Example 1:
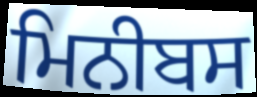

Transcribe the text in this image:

ਮਿਨੀਬਸ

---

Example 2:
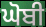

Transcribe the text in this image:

ਘੋਬੀ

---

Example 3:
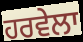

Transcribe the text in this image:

ਹਰਵੇਲਾ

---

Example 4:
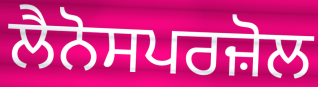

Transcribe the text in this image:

ਲੈਨੋਸਪਰਜ਼ੋਲ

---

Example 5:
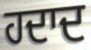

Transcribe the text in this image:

ਹਦਾਦ